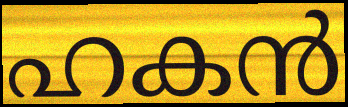
ഹകൻ